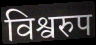
विश्वरुप